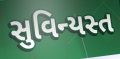
સુવિન્યસ્ત